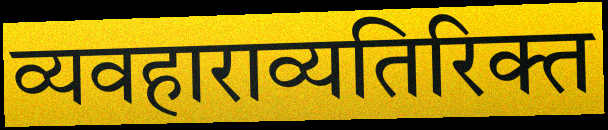
व्यवहाराव्यतिरिक्त